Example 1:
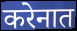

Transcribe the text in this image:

करेनात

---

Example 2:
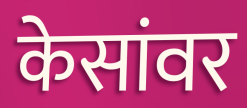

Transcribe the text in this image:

केसांवर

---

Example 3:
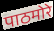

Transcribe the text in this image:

पाठमोरे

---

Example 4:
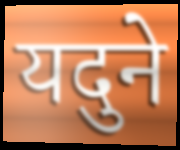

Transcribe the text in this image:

यदुने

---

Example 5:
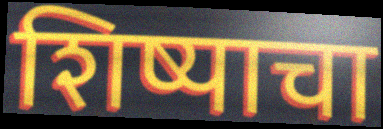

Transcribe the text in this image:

शिष्याचा